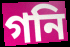
গনি